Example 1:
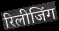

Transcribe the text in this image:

रिलीजिंग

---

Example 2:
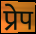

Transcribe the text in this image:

प्रेप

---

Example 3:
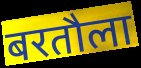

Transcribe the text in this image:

बरतौला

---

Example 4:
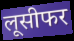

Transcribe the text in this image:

लूसीफर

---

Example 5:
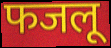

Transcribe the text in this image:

फजलू